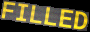
FILLED